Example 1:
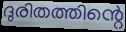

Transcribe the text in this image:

ദുരിതത്തിന്റെ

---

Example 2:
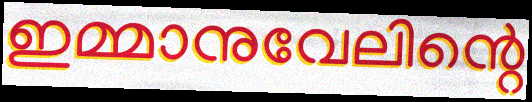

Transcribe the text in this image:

ഇമ്മാനുവേലിന്റെ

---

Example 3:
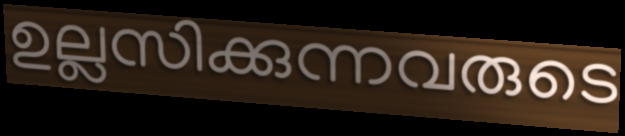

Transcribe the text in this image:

ഉല്ലസിക്കുന്നവരുടെ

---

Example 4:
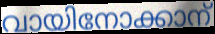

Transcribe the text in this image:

വായിനോക്കാന്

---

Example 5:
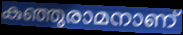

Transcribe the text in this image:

കുഞ്ഞുരാമനാണ്